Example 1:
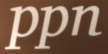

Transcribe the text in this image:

ppn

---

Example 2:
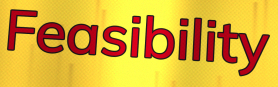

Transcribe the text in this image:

Feasibility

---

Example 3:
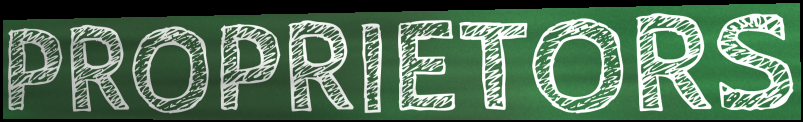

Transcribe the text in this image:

PROPRIETORS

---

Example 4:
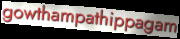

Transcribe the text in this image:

gowthampathippagam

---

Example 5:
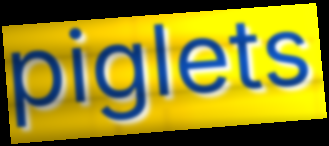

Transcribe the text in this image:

piglets